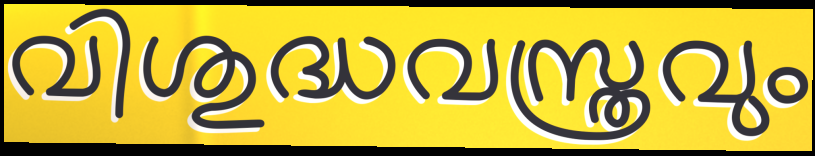
വിശുദ്ധവസ്ത്രവും